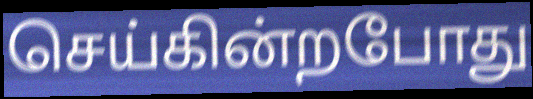
செய்கின்றபோது